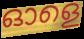
ഓളെ